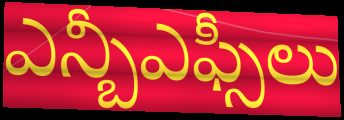
ఎన్బీఎఫ్సీలు